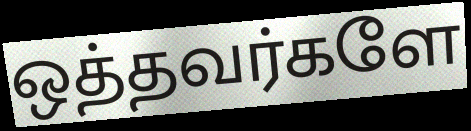
ஒத்தவர்களே